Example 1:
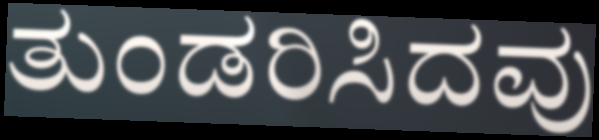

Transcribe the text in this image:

ತುಂಡರಿಸಿದವು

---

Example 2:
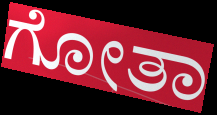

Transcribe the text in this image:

ಗೋತಾ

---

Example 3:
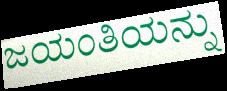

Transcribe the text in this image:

ಜಯಂತಿಯನ್ನು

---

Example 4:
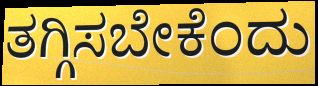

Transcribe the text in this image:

ತಗ್ಗಿಸಬೇಕೆಂದು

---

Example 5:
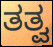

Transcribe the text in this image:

ತತ್ವ